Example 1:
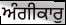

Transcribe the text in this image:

ਅੰਗੀਕਾਰੁ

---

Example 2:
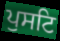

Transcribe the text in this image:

ਪੁਸਟਿ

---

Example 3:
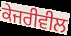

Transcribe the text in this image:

ਕੇਜਰੀਵੀਲ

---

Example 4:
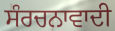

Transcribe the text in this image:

ਸੰਰਚਨਾਵਾਦੀ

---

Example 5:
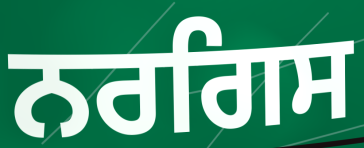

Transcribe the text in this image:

ਨਰਗਿਸ